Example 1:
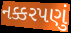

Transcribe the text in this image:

નક્કરપણું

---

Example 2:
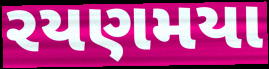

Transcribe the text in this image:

રયણમયા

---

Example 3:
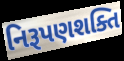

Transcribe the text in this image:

નિરૂપણશક્તિ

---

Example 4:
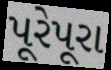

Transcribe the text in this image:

પૂરેપૂરા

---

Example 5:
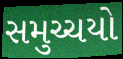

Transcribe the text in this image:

સમુચ્ચયો